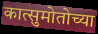
कात्सुमोतोच्या